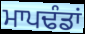
ਮਾਪਢੰਡਾਂ